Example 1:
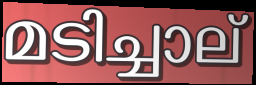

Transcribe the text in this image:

മടിച്ചാല്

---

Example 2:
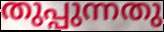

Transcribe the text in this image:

തുപ്പുന്നതു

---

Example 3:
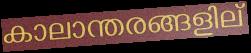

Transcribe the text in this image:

കാലാന്തരങ്ങളില്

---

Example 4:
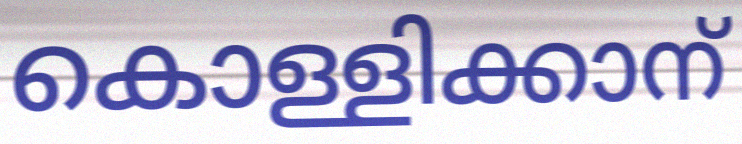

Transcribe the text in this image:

കൊള്ളിക്കാന്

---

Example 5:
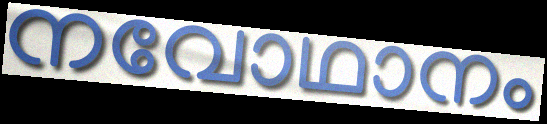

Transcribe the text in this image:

നവോഥാനം